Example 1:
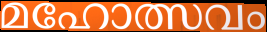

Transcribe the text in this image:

മഹോത്സവം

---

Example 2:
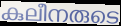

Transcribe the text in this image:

കുലീനരുടെ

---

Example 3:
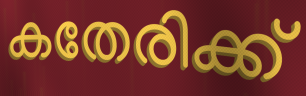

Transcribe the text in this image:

കതേരിക്ക്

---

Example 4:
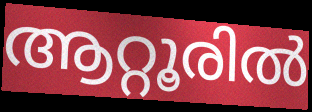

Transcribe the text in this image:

ആറ്റൂരിൽ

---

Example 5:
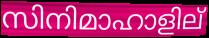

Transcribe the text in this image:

സിനിമാഹാളില്